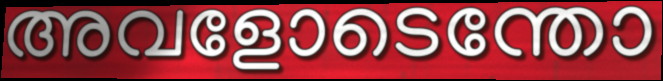
അവളോടെന്തോ